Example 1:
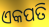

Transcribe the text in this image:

ଏକପତି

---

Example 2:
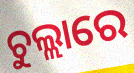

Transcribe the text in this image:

ଚୁଲ୍ଲାରେ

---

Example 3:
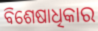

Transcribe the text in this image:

ବିଶେଷାଧିକାର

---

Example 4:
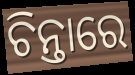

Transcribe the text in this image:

ଚିନ୍ତାରେ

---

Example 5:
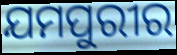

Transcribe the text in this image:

ଯମପୁରୀର